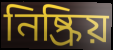
নিষ্ক্ৰিয়